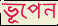
ভূপেন